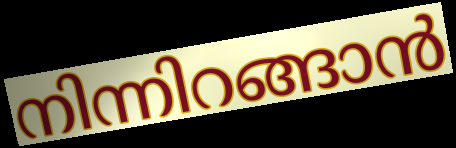
നിന്നിറങ്ങാൻ